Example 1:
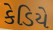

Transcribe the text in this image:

કેડિયે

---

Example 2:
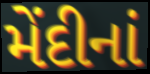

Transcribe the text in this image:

મેંદીનાં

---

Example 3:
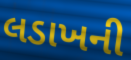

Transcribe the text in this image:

લડાખની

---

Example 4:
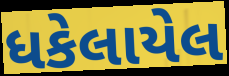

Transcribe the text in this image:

ધકેલાયેલ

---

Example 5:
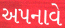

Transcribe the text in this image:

અપનાવે